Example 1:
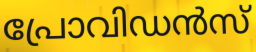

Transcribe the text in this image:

പ്രോവിഡൻസ്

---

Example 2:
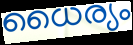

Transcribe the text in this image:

ധൈര്യം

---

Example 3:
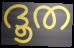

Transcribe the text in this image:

ദൂത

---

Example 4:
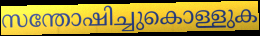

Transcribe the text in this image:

സന്തോഷിച്ചുകൊള്ളുക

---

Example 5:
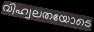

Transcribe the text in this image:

വിഹ്വലതയോടെ